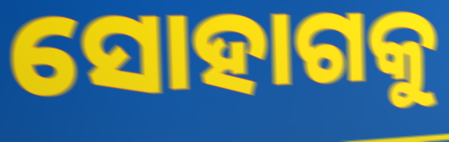
ସୋହାଗକୁ